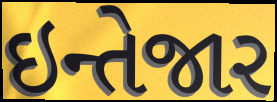
ઇન્તેજાર